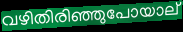
വഴിതിരിഞ്ഞുപോയാല്